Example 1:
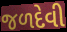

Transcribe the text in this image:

જળદેવી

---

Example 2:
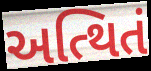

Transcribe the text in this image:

અત્થિતં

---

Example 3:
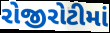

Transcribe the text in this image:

રોજીરોટીમાં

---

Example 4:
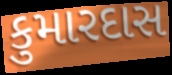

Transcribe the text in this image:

કુમારદાસ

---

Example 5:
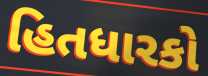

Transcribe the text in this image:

હિતધારકો